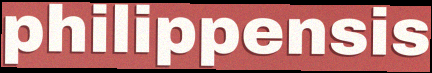
philippensis